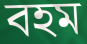
বহম